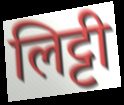
लिट्टी